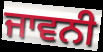
ਜਾਵਨੀ